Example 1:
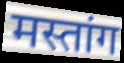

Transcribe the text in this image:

मस्तांग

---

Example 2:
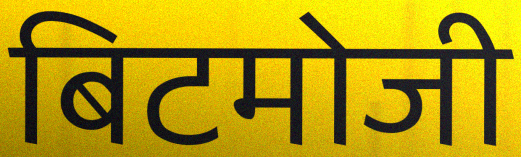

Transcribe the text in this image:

बिटमोजी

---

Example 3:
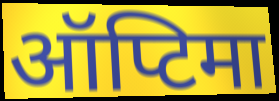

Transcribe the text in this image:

ऑप्टिमा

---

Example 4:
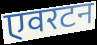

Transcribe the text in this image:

एवरटन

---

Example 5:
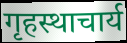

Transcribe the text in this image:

गृहस्थाचार्य